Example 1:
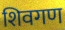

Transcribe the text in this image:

शिवगण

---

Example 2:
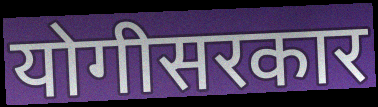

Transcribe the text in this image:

योगीसरकार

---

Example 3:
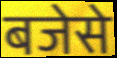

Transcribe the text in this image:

बजेसे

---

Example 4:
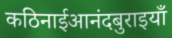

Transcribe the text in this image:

कठिनाईआनंदबुराइयाँ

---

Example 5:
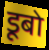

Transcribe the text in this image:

डूबो